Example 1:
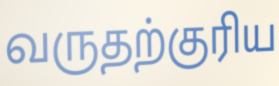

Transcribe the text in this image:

வருதற்குரிய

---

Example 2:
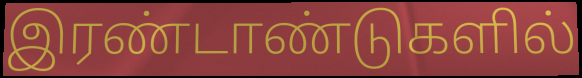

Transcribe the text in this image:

இரண்டாண்டுகளில்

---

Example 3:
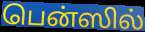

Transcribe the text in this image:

பென்ஸில்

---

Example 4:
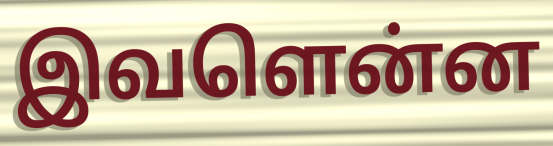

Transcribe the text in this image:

இவளென்ன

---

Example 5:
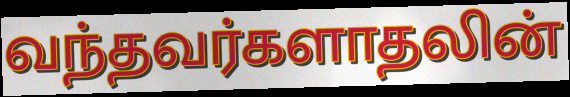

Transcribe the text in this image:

வந்தவர்களாதலின்